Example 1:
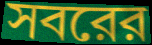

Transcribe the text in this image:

সবরের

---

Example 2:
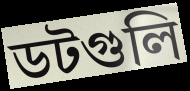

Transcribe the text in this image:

ডটগুলি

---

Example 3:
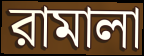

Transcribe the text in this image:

রামালা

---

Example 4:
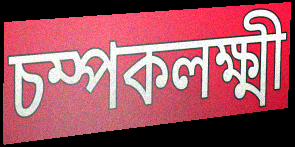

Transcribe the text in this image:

চম্পকলক্ষ্মী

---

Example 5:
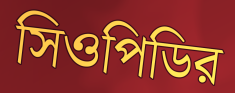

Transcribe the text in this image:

সিওপিডির